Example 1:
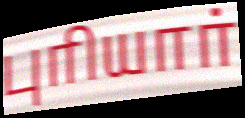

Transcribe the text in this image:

புரியார்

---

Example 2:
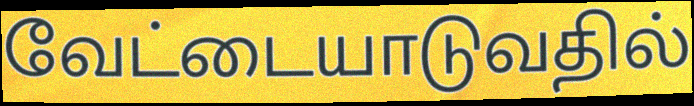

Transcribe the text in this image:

வேட்டையாடுவதில்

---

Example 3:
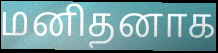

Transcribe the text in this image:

மனிதனாக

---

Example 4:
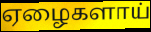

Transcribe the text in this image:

ஏழைகளாய்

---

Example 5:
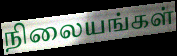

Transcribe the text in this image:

நிலையங்கள்